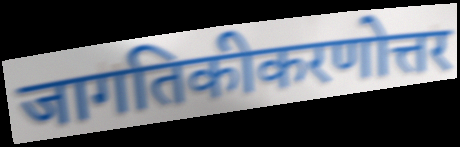
जागतिकीकरणोत्तर